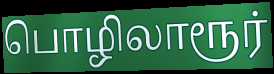
பொழிலாரூர்